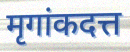
मृगांकदत्त